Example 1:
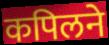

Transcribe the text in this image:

कपिलने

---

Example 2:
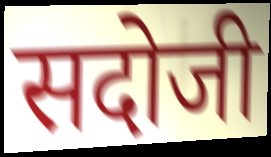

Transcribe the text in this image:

सदोजी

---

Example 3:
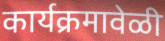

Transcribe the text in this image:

कार्यक्रमावेळी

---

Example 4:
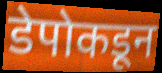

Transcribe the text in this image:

डेपोकडून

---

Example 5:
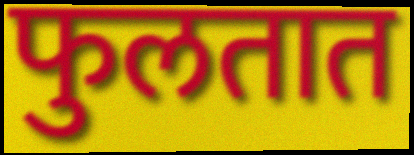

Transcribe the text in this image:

फुलतात